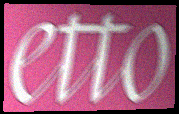
etto